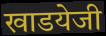
खाडयेजी